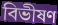
বিভীষণ